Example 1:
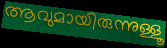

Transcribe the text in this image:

ആവുമായിരുന്നുള്ളൂ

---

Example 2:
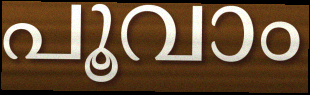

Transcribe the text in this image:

പൂവാം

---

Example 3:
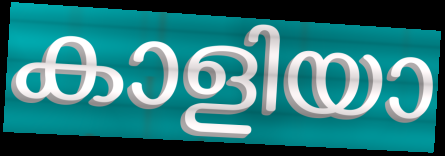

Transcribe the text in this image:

കാളിയാ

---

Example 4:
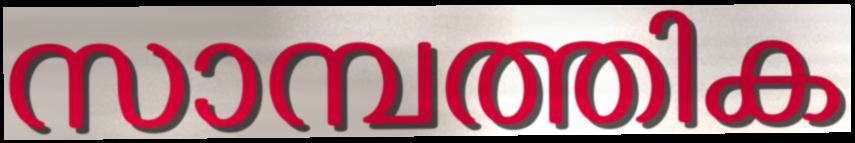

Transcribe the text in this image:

സാമ്പത്തിക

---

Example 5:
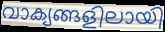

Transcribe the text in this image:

വാക്യങ്ങളിലായി